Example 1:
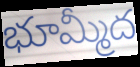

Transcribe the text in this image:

భూమ్మీద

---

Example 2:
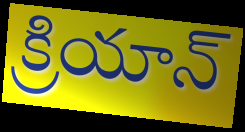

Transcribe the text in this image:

క్రియాన్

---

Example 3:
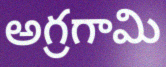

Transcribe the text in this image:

అగ్రగామి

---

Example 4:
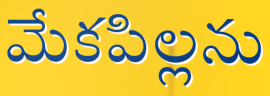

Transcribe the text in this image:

మేకపిల్లను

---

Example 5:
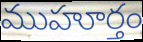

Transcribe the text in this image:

ముహూర్తం